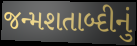
જન્મશતાબ્દીનું